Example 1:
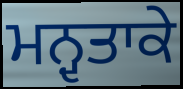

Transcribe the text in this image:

ਮਨ੍ਦਤਾਕੇ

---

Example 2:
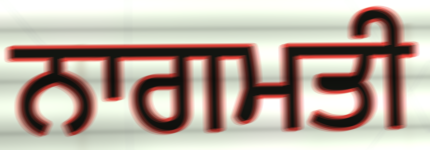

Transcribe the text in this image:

ਨਾਗਮਤੀ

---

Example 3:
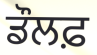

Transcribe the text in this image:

ਡੌਲਫ਼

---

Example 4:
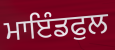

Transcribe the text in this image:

ਮਾਇੰਡਫੁਲ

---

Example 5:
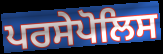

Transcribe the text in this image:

ਪਰਸੇਪੋਲਿਸ